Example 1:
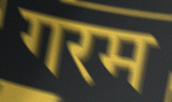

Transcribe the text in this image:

गरम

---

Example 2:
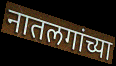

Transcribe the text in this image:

नातलगांच्या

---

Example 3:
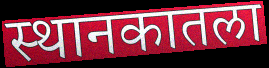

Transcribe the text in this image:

स्थानकातला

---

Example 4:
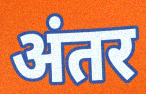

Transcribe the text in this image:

अंतर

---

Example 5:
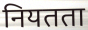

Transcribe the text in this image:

नियतता